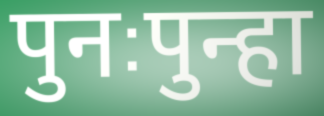
पुनःपुन्हा